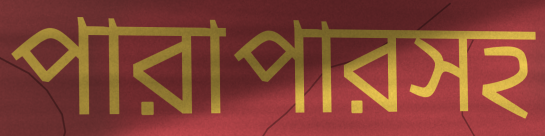
পারাপারসহ